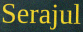
Serajul